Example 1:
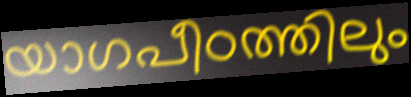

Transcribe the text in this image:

യാഗപീഠത്തിലും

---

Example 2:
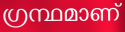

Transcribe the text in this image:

ഗ്രന്ഥമാണ്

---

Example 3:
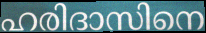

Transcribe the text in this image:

ഹരിദാസിനെ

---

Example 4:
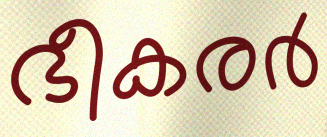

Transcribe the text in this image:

ഭീകരർ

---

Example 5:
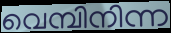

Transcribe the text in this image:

വെമ്പിനിന്ന